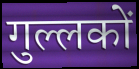
गुल्लकों